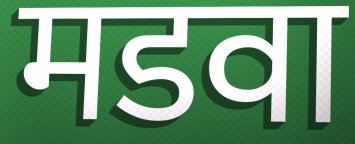
मडवा